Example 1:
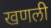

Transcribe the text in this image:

खणली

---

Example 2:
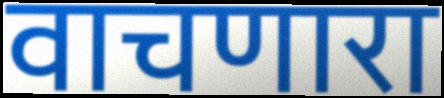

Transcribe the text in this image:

वाचणारा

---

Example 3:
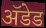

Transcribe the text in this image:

ॲडेड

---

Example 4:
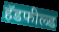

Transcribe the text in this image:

हॅडफील्ड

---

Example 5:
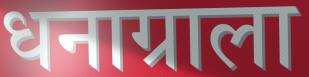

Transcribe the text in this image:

धनाग्राला